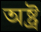
অষ্ট্ৰ